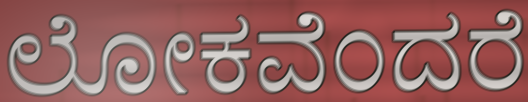
ಲೋಕವೆಂದರೆ